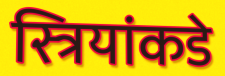
स्त्रियांकडे